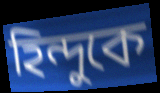
হিন্দুকে